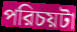
পরিচয়টা